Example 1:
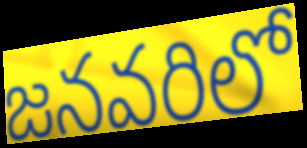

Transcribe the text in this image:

జనవరిలో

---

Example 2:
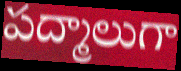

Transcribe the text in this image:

పద్మాలుగా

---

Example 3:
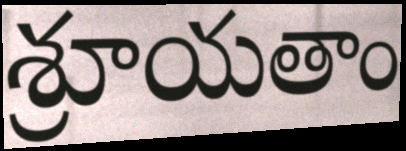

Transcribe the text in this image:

శ్రూయతాం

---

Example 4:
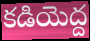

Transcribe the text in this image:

కడియెద్ద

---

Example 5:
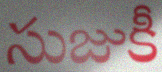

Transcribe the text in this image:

సుజుకీ